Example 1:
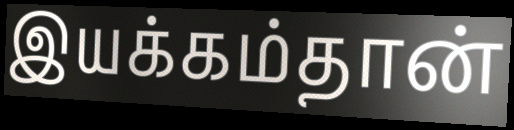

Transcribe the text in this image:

இயக்கம்தான்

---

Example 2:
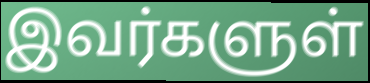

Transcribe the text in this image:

இவர்களுள்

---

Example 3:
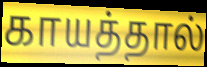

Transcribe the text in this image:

காயத்தால்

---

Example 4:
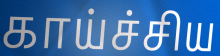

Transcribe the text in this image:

காய்ச்சிய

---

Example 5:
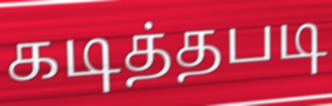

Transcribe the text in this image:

கடித்தபடி